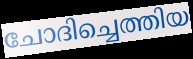
ചോദിച്ചെത്തിയ